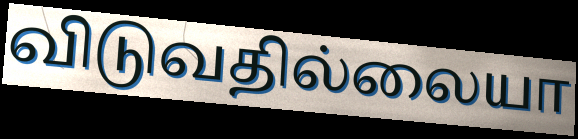
விடுவதில்லையா